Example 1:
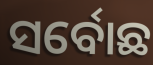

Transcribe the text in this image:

ସର୍ବୋଛ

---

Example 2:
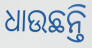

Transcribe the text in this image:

ଧାଉଛନ୍ତି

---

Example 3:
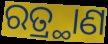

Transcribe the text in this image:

ରତ୍ର୍ଥାଣ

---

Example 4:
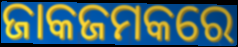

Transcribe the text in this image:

ଜାକଜମକରେ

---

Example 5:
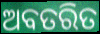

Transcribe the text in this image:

ଅବତରିତ